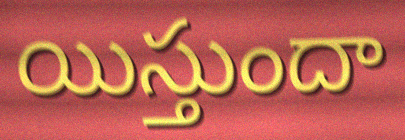
యిస్తుందా